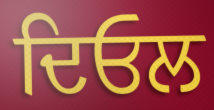
ਦਿਓਲ